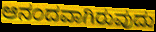
ಆನಂದವಾಗಿರುವುದು